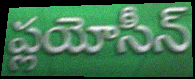
ప్లయోసీన్